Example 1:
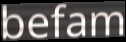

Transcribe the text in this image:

befam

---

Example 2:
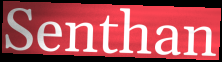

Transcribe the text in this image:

Senthan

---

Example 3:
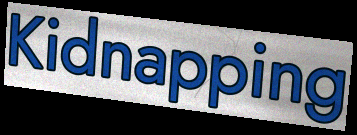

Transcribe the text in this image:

Kidnapping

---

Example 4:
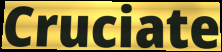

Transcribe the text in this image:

Cruciate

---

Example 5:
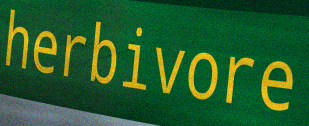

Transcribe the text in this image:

herbivore